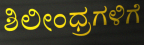
ಶಿಲೀಂಧ್ರಗಳಿಗೆ